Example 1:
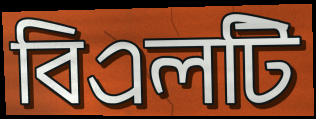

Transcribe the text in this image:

বিএলটি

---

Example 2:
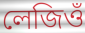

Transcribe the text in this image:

লেজিওঁ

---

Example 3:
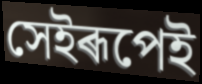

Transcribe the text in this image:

সেইৰূপেই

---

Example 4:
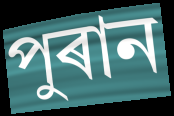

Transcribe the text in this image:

পুৰান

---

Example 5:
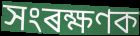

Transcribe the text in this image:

সংৰক্ষণক